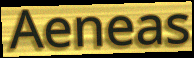
Aeneas